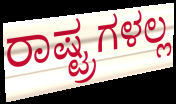
ರಾಷ್ಟ್ರಗಳಲ್ಲ